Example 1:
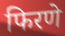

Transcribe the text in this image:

फिरणे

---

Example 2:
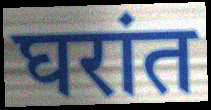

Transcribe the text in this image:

घरांत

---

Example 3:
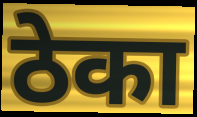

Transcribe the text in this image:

ठेका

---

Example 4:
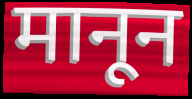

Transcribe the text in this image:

मानून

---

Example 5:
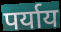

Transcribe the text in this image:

पर्याय